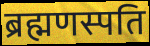
ब्रह्मणस्पति